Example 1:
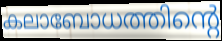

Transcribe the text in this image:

കലാബോധത്തിന്റെ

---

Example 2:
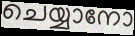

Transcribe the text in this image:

ചെയ്യാനോ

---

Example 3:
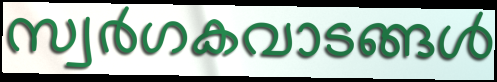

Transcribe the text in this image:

സ്വർഗകവാടങ്ങൾ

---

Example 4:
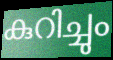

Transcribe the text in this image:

കുറിച്ചും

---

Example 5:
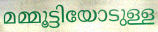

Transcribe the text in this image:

മമ്മൂട്ടിയോടുള്ള